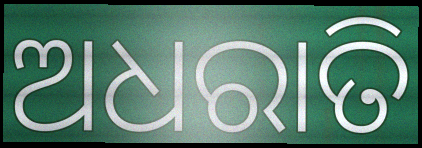
ଅଧରାତି